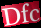
Dfc